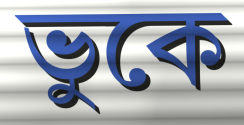
ভুকে